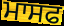
ਮਾਸਫ